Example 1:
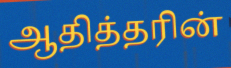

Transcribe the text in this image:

ஆதித்தரின்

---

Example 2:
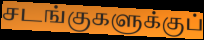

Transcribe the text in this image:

சடங்குகளுக்குப்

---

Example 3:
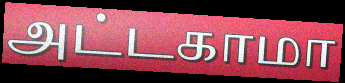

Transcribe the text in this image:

அட்டகாமா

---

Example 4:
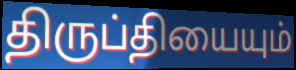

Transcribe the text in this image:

திருப்தியையும்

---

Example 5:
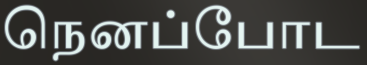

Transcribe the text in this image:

நெனப்போட